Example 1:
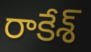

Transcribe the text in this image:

రాకేశ్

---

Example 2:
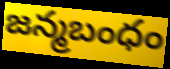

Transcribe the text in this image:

జన్మబంధం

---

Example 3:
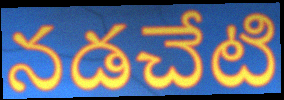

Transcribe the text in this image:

నడచేటి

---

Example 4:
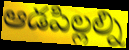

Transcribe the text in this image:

ఆడపిల్లల్ని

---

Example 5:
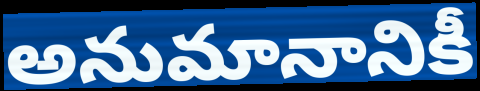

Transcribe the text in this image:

అనుమానానికీ